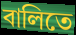
বালিতে